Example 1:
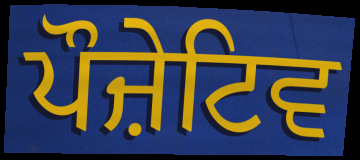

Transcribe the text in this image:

ਪੌਜ਼ੇਟਿਵ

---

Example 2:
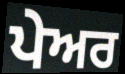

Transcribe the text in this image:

ਪੇਅਰ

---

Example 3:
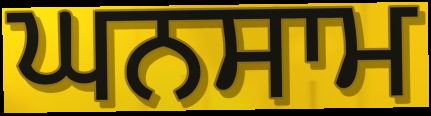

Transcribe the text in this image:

ਘਨਸਾਮ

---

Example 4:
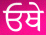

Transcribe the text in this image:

ਓਥੇ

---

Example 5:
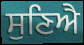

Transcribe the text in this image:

ਸੁਣਿਐ